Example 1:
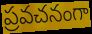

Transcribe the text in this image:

ప్రవచనంగా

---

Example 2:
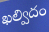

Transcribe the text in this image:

ఖల్విదం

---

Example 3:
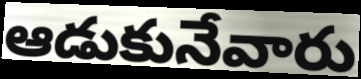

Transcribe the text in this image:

ఆడుకునేవారు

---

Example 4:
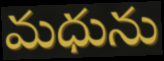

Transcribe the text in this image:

మధును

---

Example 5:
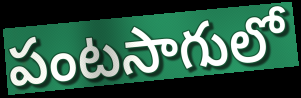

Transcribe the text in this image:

పంటసాగులో